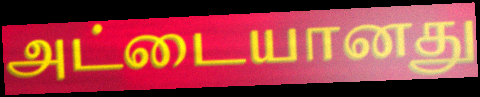
அட்டையானது